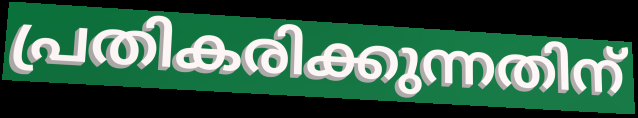
പ്രതികരിക്കുന്നതിന്